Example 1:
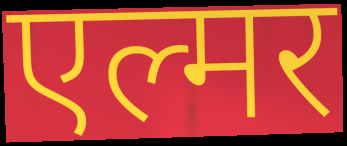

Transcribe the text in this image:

एल्मर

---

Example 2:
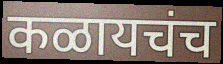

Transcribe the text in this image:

कळायचंच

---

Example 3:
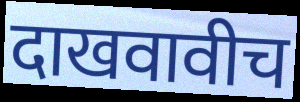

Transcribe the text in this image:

दाखवावीच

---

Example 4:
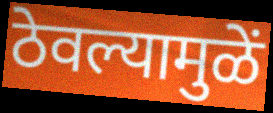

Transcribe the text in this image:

ठेवल्यामुळें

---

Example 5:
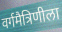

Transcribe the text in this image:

वर्गमैत्रिणीला